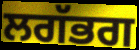
ਲਗੱਭਗ